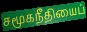
சமூகநீதியைப்